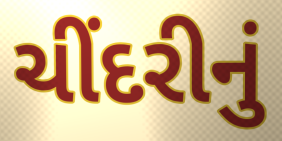
ચીંદરીનું